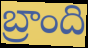
బ్రాంది